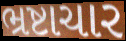
ભ્રષ્ટાચાર